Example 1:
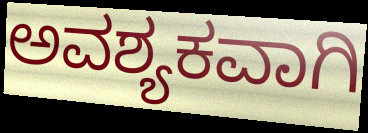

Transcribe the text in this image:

ಅವಶ್ಯಕವಾಗಿ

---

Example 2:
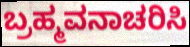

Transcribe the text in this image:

ಬ್ರಹ್ಮವನಾಚರಿಸಿ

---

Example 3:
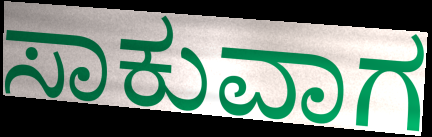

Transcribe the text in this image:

ಸಾಕುವಾಗ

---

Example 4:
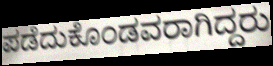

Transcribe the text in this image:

ಪಡೆದುಕೊಂಡವರಾಗಿದ್ದರು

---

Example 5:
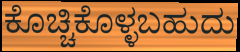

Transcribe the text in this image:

ಕೊಚ್ಚಿಕೊಳ್ಳಬಹುದು